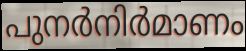
പുനർനിർമാണം